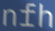
nfh